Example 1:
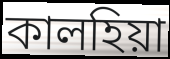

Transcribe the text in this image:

কালহিয়া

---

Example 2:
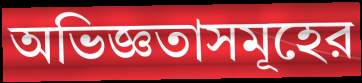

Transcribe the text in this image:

অভিজ্ঞতাসমূহের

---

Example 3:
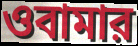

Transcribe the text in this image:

ওবামার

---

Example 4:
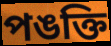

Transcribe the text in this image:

পঙক্তি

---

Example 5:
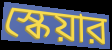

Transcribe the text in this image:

স্কেয়ার